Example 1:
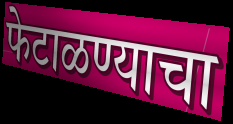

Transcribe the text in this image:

फेटाळण्याचा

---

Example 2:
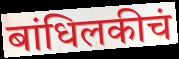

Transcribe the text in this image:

बांधिलकीचं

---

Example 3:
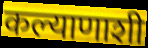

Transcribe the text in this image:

कल्याणाशी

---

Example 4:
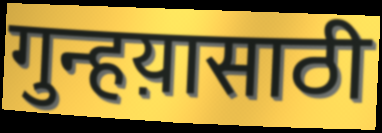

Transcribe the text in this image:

गुन्हय़ासाठी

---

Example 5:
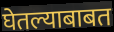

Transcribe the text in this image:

घेतल्याबाबत